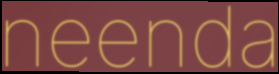
neenda